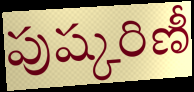
పుష్కరిణీ